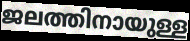
ജലത്തിനായുള്ള